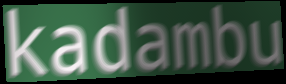
kadambu